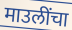
माउलींचा